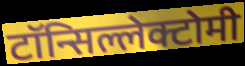
टॉन्सिल्लेक्टोमी